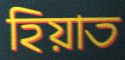
হিয়াত